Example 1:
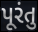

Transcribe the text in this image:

પૂરંતુ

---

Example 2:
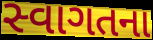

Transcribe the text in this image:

સ્વાગતના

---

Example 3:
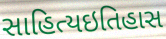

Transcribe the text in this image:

સાહિત્યઇતિહાસ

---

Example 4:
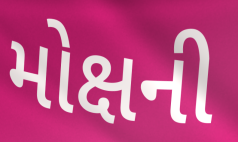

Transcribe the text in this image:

મોક્ષની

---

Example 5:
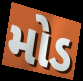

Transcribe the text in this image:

મોડ